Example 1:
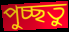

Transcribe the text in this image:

পুচ্ছতু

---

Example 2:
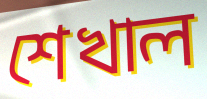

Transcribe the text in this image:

শেখাল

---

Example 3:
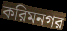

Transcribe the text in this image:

করিমনগর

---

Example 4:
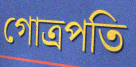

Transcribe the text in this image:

গোত্রপতি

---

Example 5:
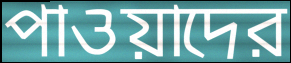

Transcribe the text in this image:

পাওয়াদের